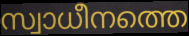
സ്വാധീനത്തെ